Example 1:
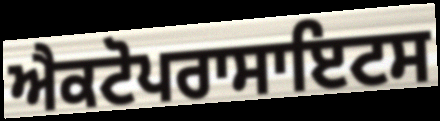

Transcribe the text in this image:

ਐਕਟੋਪਰਾਸਾਇਟਸ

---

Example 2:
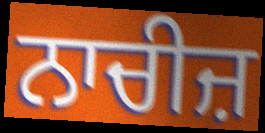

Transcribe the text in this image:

ਨਾਚੀਜ਼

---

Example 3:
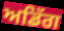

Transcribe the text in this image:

ਅਡਿੱਗ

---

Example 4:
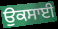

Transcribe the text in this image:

ਉਕਸਾਈ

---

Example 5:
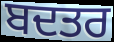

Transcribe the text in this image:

ਬਦਤਰ